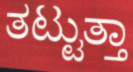
ತಟ್ಟುತ್ತಾ